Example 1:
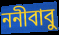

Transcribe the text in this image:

ননীবাবু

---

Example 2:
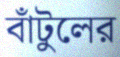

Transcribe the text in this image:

বাঁটুলের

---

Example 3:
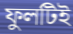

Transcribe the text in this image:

ফুলটিই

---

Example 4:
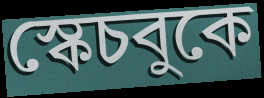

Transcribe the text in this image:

স্কেচবুকে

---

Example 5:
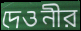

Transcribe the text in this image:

দেওনীর